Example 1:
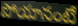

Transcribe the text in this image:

పోయానంటే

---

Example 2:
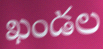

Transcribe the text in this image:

ఖండల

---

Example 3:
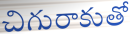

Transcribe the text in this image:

చిగురాకుతో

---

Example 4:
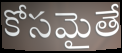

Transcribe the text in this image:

కోసమైతే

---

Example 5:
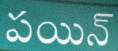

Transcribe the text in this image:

పయిన్